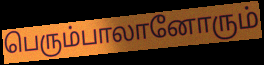
பெரும்பாலானோரும்